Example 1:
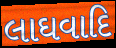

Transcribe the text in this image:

લાઘવાદિ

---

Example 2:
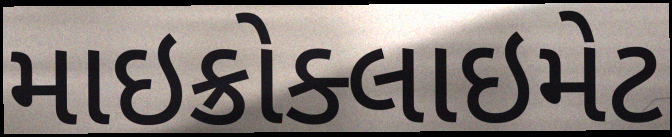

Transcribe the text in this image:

માઇક્રોક્લાઇમેટ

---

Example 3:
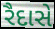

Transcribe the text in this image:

રૈદાસે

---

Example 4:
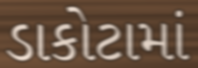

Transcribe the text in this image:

ડાકોટામાં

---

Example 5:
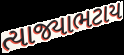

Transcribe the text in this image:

ત્યાજ્યાભટાય